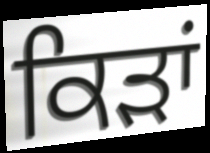
ਕਿੜਾਂ